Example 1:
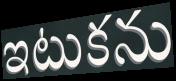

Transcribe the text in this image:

ఇటుకను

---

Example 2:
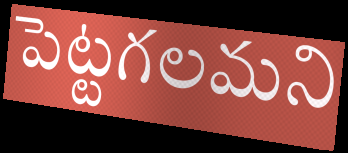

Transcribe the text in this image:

పెట్టగలమని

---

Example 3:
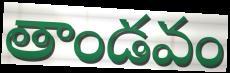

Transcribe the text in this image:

తాండవం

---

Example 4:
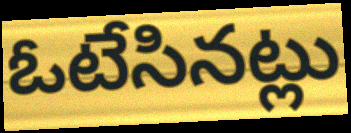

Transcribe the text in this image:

ఓటేసినట్లు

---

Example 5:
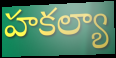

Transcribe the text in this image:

హకల్యా